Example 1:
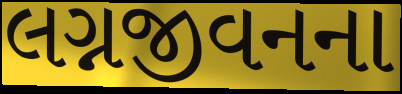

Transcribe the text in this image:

લગ્નજીવનના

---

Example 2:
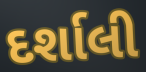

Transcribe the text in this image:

દર્શાલી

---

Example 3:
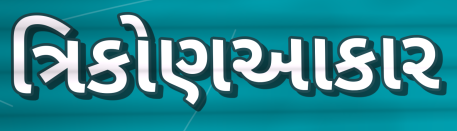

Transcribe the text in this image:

ત્રિકોણઆકાર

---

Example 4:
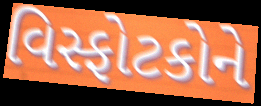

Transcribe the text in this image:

વિસ્ફોટકોને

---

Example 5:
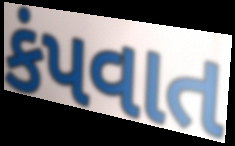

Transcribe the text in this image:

કંપવાત